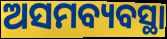
ଅସମବ୍ୟବସ୍ଥା